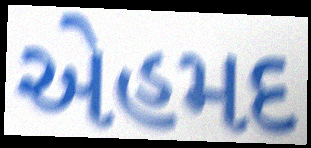
એહમદ